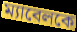
ম্যাবেলকে